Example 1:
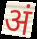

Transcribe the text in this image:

अं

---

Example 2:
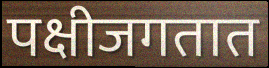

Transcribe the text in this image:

पक्षीजगतात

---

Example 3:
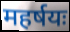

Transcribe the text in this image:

महर्षयः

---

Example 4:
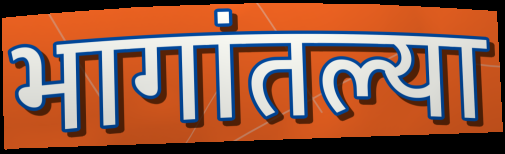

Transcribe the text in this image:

भागांतल्या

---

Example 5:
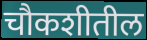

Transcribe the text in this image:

चौकशीतील